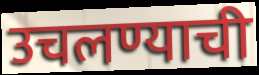
उचलण्याची